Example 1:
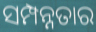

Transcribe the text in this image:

ସମ୍ପନ୍ନତାର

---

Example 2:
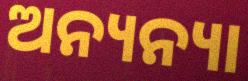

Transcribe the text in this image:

ଅନ୍ୟନ୍ୟା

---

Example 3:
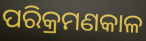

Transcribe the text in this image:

ପରିକ୍ରମଣକାଳ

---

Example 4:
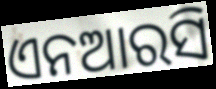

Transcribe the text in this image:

ଏନଆରସି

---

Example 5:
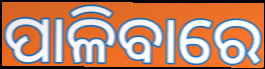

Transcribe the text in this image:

ପାଳିବାରେ